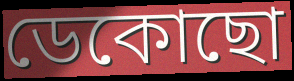
ডেকোছো